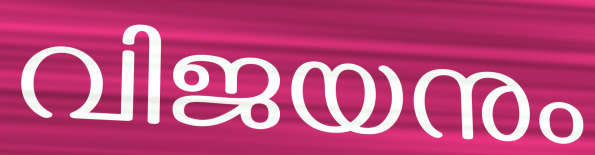
വിജയനും